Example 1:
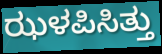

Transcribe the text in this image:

ಝಳಪಿಸಿತ್ತು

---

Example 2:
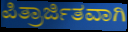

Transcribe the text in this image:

ಪಿತ್ರಾರ್ಜಿತವಾಗಿ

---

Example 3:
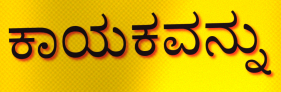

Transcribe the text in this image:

ಕಾಯಕವನ್ನು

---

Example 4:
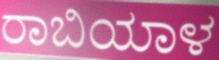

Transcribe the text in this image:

ರಾಬಿಯಾಳ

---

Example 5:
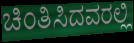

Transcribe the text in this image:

ಚಿಂತಿಸಿದವರಲ್ಲಿ